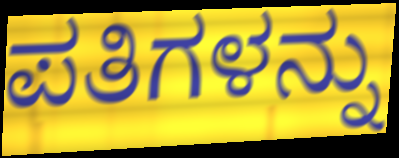
ಪತಿಗಳನ್ನು